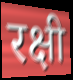
रक्षी